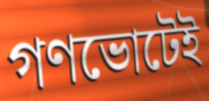
গণভোটেই